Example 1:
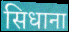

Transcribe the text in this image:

सिधाना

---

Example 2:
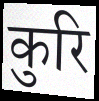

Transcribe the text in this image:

कुरि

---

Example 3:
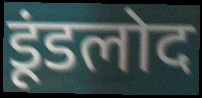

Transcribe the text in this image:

डूंडलोद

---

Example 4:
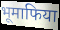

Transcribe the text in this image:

भूमाफिया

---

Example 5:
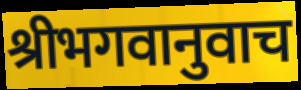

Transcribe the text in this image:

श्रीभगवानुवाच